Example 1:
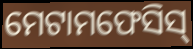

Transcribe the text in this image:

ମେଟାମଫେସିସ୍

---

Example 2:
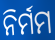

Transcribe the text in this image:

ନିର୍ମମ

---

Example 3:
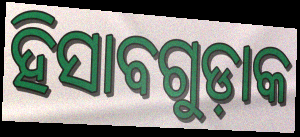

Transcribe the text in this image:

ହିସାବଗୁଡ଼ାକ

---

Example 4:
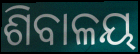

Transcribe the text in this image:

ଶିବାଳୟ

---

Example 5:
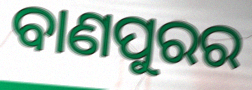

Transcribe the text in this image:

ବାଣପୁରର